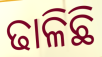
ଢାଳିଛି